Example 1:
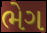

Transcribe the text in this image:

ભેગ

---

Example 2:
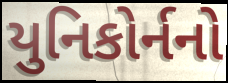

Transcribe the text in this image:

યુનિકોર્નનો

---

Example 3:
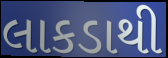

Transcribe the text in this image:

લાકડાથી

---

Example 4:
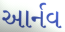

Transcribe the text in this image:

આર્નવ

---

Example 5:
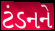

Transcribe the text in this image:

ટંડનને